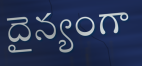
దైన్యంగా